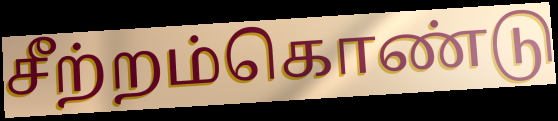
சீற்றம்கொண்டு